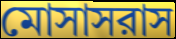
মোসাসরাস